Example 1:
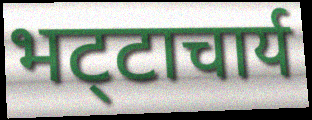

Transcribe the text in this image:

भट्‍टाचार्य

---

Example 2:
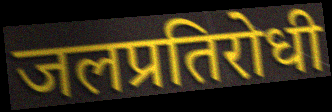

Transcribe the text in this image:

जलप्रतिरोधी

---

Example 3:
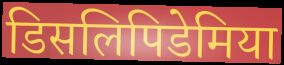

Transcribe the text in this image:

डिसलिपिडेमिया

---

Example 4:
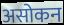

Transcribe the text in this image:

असोकन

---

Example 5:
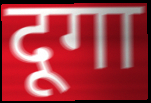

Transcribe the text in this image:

दूगा